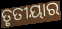
ତୃତୀୟାର